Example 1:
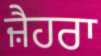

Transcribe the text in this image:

ਜ਼ੈਹਰਾ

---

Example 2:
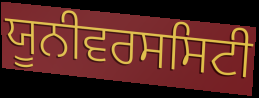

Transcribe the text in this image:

ਯੂਨੀਵਰਸਸਿਟੀ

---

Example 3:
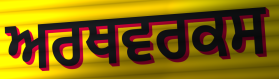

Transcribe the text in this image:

ਅਰਥਵਰਕਸ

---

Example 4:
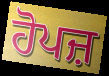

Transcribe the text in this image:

ਹੋਪਜ਼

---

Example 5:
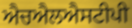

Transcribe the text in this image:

ਐਚਐਲਐਸਟੀਪੀ